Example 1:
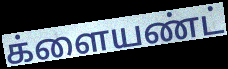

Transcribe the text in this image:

க்ளையண்ட்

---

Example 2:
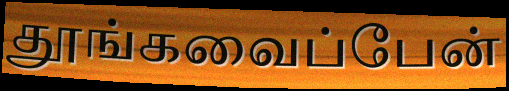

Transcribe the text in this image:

தூங்கவைப்பேன்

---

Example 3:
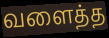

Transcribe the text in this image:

வளைத்த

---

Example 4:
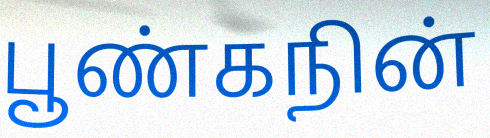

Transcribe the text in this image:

பூண்கநின்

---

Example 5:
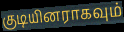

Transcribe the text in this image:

குடியினராகவும்